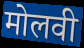
मोलवी